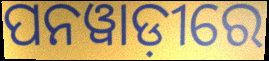
ପନୱାଡ଼ୀରେ